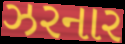
ઝરનાર